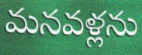
మనవళ్లను